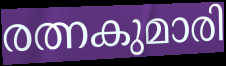
രത്നകുമാരി